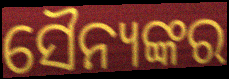
ସୈନ୍ୟଙ୍କର